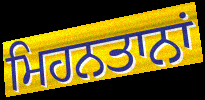
ਮਿਹਨਤਾਨਾਂ